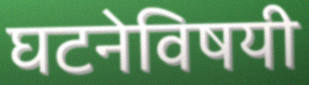
घटनेविषयी